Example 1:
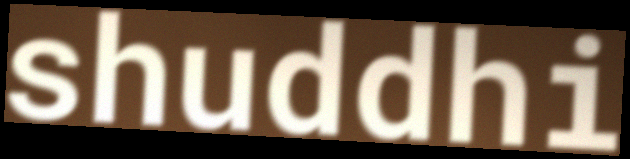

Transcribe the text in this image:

shuddhi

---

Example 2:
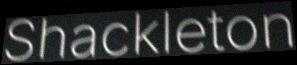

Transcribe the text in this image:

Shackleton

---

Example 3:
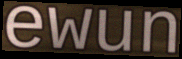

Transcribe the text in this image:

ewun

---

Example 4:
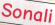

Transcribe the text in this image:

Sonali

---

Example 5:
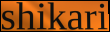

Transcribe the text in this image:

shikari